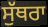
ਸੁੱਥਰਾ